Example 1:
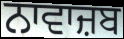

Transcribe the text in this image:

ਨਾਵਾਜ਼ਬ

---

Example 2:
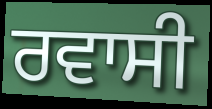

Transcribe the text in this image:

ਰਵਾਸੀ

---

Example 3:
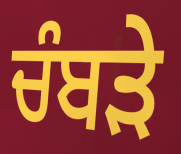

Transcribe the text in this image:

ਚੰਬੜੇ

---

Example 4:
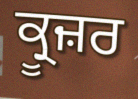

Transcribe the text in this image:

ਕ੍ਰੂਜ਼ਰ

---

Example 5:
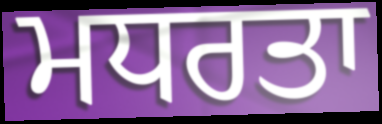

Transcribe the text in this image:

ਮਧਰਤਾ